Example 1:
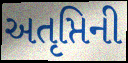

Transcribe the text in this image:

અતૃપ્તિની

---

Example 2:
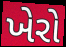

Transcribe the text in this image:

ખેરો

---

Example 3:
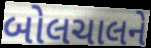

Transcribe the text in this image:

બોલચાલને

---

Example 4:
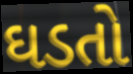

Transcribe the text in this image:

ઘડતો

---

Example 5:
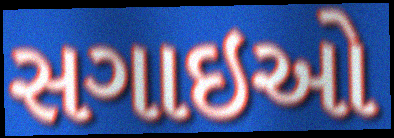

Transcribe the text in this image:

સગાઇઓ